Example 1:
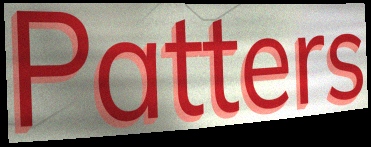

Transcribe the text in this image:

Patters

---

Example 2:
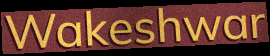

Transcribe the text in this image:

Wakeshwar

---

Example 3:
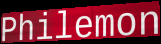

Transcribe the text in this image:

Philemon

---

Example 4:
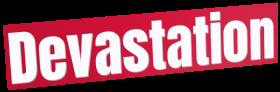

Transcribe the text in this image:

Devastation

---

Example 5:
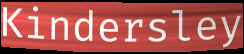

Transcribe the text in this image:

Kindersley